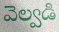
వెల్వడి